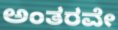
ಅಂತರವೇ